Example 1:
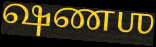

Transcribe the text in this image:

ஷணஶ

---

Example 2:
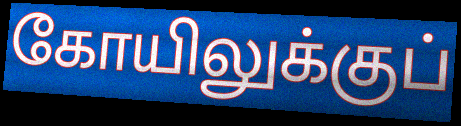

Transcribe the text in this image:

கோயிலுக்குப்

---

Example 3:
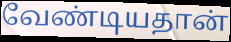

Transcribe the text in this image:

வேண்டியதான்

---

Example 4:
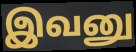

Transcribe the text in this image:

இவனு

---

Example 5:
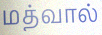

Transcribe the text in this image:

மத்வால்